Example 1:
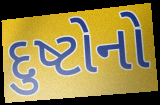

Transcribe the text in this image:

દુષ્ટોનો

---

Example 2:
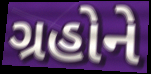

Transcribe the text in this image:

ગ્રહોને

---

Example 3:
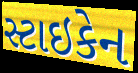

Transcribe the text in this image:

સ્ટાઇકેન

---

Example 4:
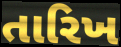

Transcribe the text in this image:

તારિખ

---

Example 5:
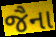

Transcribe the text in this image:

જૈના